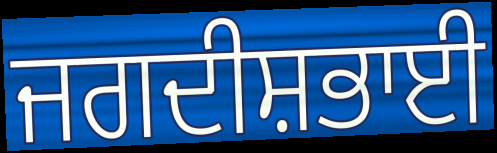
ਜਗਦੀਸ਼ਭਾਈ